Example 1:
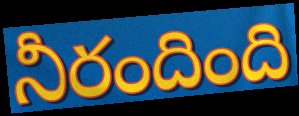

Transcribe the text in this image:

నీరందింది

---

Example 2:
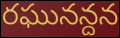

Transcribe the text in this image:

రఘునన్దన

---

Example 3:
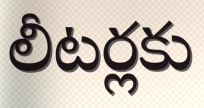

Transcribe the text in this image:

లీటర్లకు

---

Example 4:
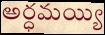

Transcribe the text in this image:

అర్ధమయ్యి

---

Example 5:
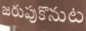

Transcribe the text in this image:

జరుపుకొనుట